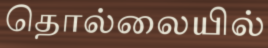
தொல்லையில்